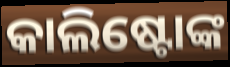
କାଲିଷ୍ଟୋଙ୍କ